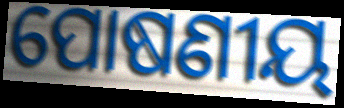
ପୋଷଣୀୟ